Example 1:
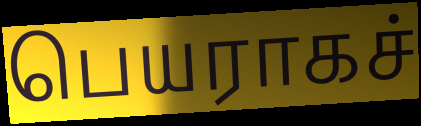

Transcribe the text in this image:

பெயராகச்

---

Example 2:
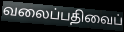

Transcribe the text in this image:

வலைப்பதிவைப்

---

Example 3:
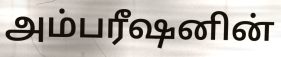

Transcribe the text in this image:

அம்பரீஷனின்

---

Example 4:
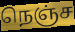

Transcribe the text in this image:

நெஞ்ச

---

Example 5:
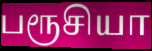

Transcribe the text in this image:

பரூசியா